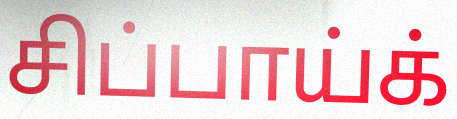
சிப்பாய்க்